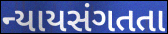
ન્યાયસંગતતા